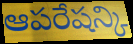
ఆపరేషన్కి